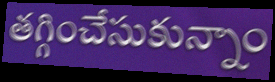
తగ్గించేసుకున్నాం